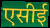
एसीई